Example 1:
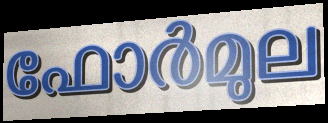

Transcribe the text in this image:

ഫോർമുല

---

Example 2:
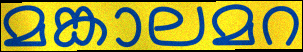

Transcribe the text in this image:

മങ്കാലമറ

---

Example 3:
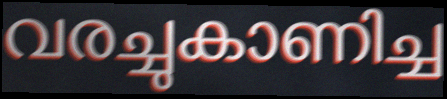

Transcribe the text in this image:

വരച്ചുകാണിച്ച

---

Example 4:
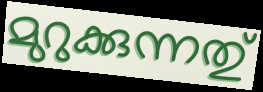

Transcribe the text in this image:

മുറുക്കുന്നതു്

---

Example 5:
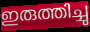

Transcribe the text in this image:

ഇരുത്തിച്ചു